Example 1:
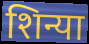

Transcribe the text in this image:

शिन्या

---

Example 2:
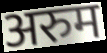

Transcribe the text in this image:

अरुम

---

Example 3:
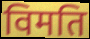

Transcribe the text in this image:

विमति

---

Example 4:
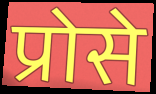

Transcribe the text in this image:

प्रोसे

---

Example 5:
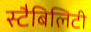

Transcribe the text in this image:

स्टैबिलिटी